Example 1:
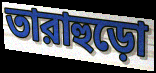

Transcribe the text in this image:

তারাহুড়ো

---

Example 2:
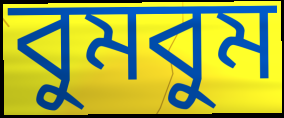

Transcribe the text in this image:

বুমবুম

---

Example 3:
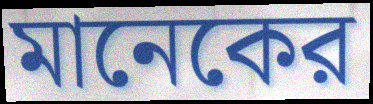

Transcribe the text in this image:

মানেকের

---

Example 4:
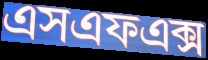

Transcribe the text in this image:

এসএফএক্স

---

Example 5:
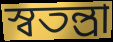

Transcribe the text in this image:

স্বতন্ত্রা